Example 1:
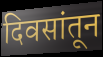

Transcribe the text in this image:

दिवसांतून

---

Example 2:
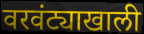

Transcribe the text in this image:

वरवंट्याखाली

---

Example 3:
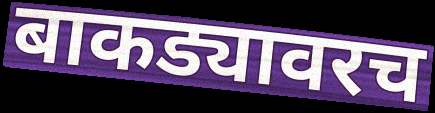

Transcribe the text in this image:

बाकड्यावरच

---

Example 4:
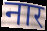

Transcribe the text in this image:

नार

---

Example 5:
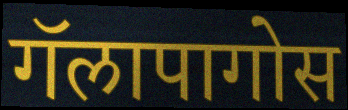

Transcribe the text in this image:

गॅलापागोस